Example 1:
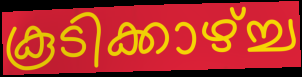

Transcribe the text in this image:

കൂടിക്കാഴ്ച്ച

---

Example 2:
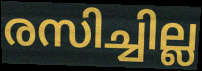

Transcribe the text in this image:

രസിച്ചില്ല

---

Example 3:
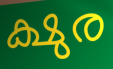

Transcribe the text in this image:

ക്ഷുര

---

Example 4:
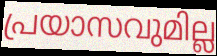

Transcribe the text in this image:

പ്രയാസവുമില്ല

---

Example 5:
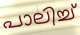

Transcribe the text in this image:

പാലിച്ച്